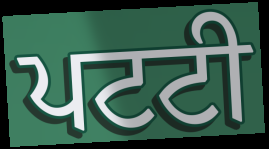
ਪਟਟੀ